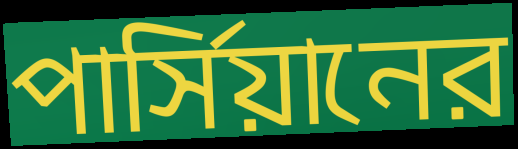
পার্সিয়ানের